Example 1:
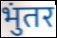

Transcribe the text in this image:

भुंतर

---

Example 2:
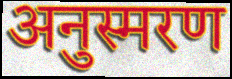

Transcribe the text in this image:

अनुस्मरण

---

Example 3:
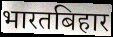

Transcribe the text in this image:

भारतबिहार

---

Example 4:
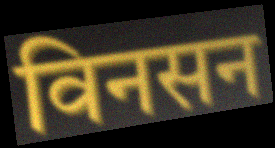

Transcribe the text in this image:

विनसन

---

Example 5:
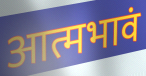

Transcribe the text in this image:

आत्मभावं